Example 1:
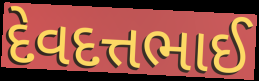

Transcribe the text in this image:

દેવદત્તભાઈ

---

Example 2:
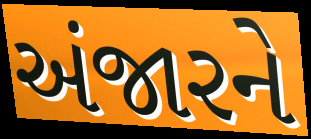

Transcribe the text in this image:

અંજારને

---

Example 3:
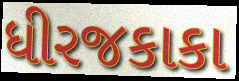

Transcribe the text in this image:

ધીરજકાકા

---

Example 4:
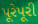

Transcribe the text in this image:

પૂરેપૂરી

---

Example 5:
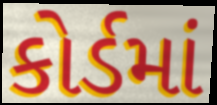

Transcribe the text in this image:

કોર્ડમાં